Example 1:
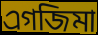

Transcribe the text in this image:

এগজিমা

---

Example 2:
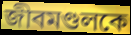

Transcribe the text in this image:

জীবমণ্ডলকে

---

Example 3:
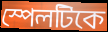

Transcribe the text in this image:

স্পেলটিকে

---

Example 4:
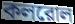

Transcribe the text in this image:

কলরোল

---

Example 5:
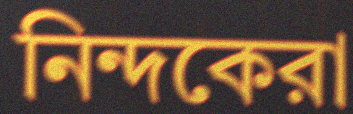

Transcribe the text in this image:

নিন্দকেরা